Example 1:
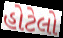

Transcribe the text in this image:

હોટેલો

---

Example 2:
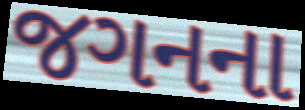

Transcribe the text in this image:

જગનના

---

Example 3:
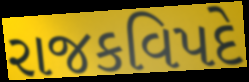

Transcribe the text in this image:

રાજકવિપદે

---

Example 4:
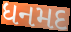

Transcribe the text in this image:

ધનમદ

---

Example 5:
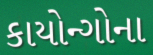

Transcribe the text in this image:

કાયોન્ગોના